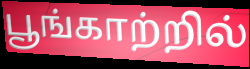
பூங்காற்றில்